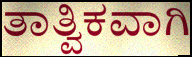
ತಾತ್ವಿಕವಾಗಿ